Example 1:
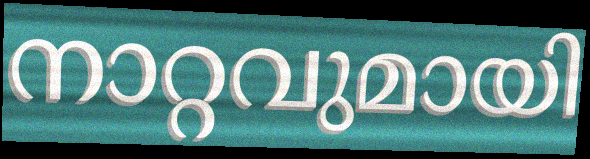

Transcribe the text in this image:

നാറ്റവുമായി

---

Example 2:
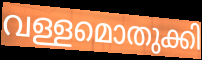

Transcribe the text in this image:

വള്ളമൊതുക്കി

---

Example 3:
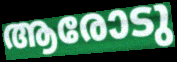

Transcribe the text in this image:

ആരോടു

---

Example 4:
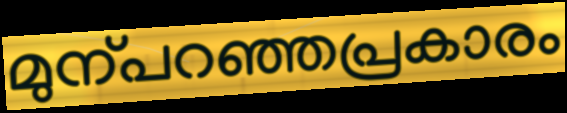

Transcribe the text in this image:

മുന്പറഞ്ഞപ്രകാരം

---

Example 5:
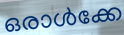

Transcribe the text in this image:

ഒരാൾക്കേ